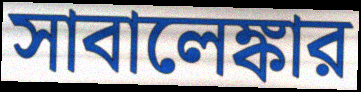
সাবালেঙ্কার